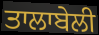
ਤਾਲਾਬੇਲੀ